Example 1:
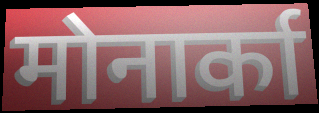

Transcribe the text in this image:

मोनार्का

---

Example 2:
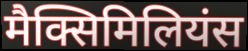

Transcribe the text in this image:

मैक्सिमिलियंस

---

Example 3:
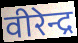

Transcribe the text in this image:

वीरेन्द्र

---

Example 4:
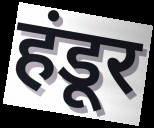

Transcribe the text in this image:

हंडूर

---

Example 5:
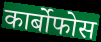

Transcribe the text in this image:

कार्बोफोस